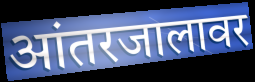
आंतरजालावर